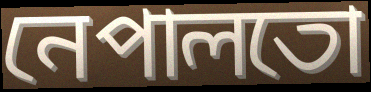
নেপালতো